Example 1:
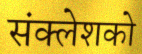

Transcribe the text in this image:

संक्लेशको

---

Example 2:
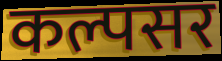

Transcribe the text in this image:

कल्पसर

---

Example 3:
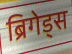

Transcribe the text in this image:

ब्रिगेड्स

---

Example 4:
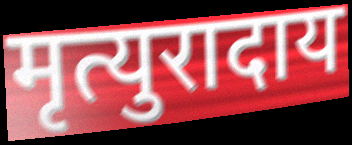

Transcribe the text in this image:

मृत्युरादाय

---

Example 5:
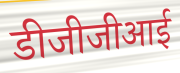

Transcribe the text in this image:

डीजीजीआई